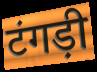
टंगड़ी